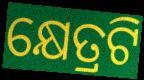
କ୍ଷେତ୍ରଟି